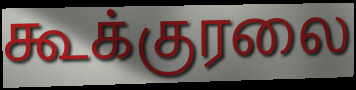
கூக்குரலை